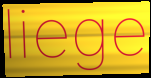
liege